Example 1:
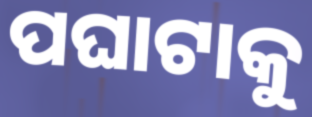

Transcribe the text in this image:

ପଘାଟାକୁ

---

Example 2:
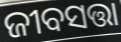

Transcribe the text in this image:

ଜୀବସତ୍ତା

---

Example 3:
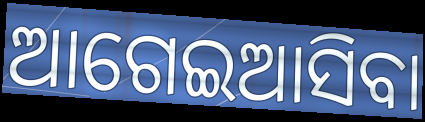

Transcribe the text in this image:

ଆଗେଇଆସିବା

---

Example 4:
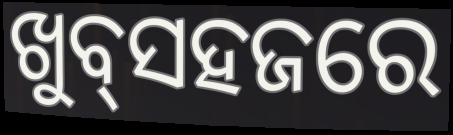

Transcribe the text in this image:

ଖୁବ୍‌ସହଜରେ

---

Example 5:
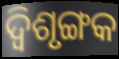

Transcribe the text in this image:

ଦ୍ଵିଶୃଙ୍ଗକ